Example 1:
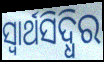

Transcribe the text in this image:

ସ୍ଵାର୍ଥସିଦ୍ଧିର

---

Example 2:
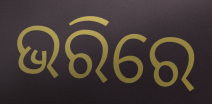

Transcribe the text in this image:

ଭରିରେ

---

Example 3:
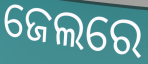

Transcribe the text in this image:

ଜେଲରେ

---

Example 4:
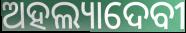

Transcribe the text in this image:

ଅହଲ୍ୟାଦେବୀ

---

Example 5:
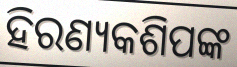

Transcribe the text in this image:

ହିରଣ୍ୟକଶିପଙ୍କ